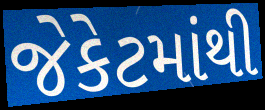
જેકેટમાંથી